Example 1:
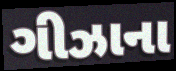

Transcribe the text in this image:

ગીઝાના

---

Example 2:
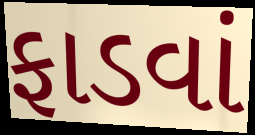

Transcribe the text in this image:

ફાડવાં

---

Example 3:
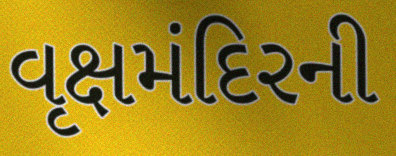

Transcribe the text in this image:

વૃક્ષમંદિરની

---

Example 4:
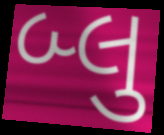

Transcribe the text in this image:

બ્લુ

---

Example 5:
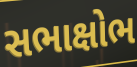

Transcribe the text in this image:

સભાક્ષોભ